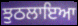
ਝੁਠਲਾਇਆ